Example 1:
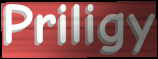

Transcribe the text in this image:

Priligy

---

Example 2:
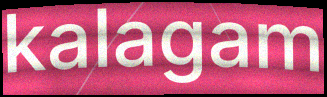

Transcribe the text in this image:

kalagam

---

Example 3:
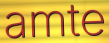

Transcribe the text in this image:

amte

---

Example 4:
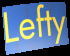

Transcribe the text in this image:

Lefty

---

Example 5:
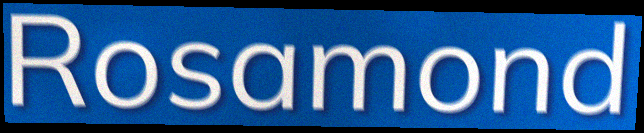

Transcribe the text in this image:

Rosamond